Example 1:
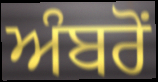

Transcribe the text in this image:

ਅੰਬਰੋਂ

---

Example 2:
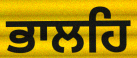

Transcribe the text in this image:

ਭਾਲਹਿ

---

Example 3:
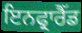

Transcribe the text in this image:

ਇਨਫ੍ਰਾਰੈੱਡ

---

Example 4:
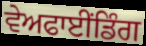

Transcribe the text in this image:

ਵੇਅਫਾਈਂਡਿੰਗ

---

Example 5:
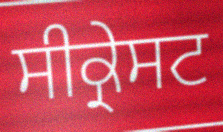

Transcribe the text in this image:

ਸੀਕ੍ਰੇਸਟ